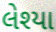
લેશ્યા